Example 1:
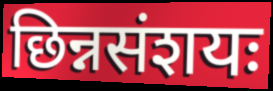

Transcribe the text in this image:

छिन्नसंशयः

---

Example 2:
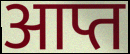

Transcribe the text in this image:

आप्त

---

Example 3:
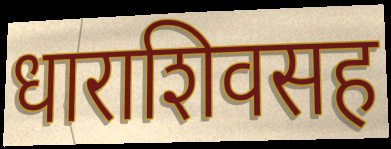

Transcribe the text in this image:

धाराशिवसह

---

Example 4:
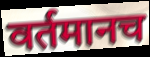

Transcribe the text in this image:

वर्तमानच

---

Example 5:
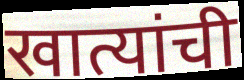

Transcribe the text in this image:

खात्यांची